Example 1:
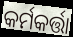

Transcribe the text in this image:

କର୍ମକର୍ତ୍ତା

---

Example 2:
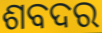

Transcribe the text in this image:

ଶବଦର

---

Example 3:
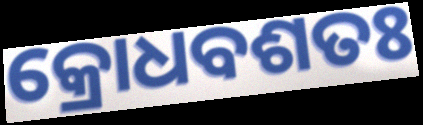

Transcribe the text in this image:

କ୍ରୋଧବଶତଃ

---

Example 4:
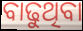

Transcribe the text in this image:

ବାଢୁଥିବା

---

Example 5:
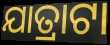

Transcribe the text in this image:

ଯାତ୍ରାଟା